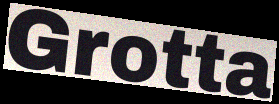
Grotta